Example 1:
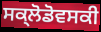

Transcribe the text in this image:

ਸਕ੍ਲੋਡੋਵਸਕੀ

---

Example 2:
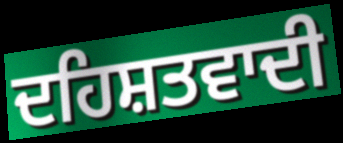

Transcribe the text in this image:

ਦਹਿਸ਼ਤਵਾਦੀ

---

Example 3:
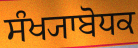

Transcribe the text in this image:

ਸੰਖ੍ਯਾਬੋਧਕ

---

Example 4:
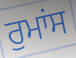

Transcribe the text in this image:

ਰੁਮਾਂਸ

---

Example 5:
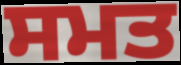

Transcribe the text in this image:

ਸਮਤ